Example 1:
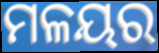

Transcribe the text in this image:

ମଳୟର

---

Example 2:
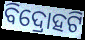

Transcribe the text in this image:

ବିଦ୍ରୋହଟି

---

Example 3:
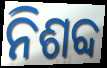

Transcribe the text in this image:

ନିଶବ୍ଦ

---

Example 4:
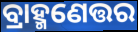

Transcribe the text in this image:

ବ୍ରାହ୍ମଣେତ୍ତର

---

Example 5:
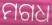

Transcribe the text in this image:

ମଗଧ